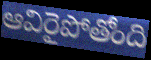
ఆవిరైపోతోంది